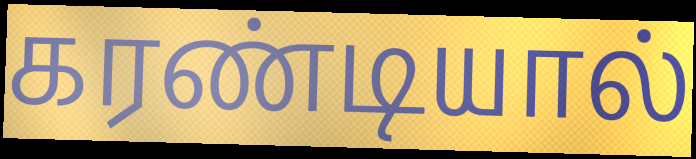
கரண்டியால்